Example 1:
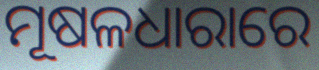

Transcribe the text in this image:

ମୂଷଳଧାରାରେ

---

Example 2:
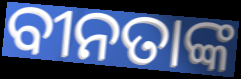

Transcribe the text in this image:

ବୀନତାଙ୍କ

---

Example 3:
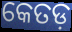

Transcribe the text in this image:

କେତଡ଼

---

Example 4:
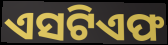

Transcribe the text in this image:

ଏସଟିଏଫ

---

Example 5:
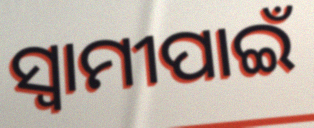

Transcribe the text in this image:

ସ୍ୱାମୀପାଇଁ